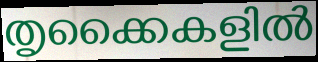
തൃക്കൈകളിൽ